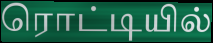
ரொட்டியில்